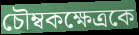
চৌম্বকক্ষেত্রকে